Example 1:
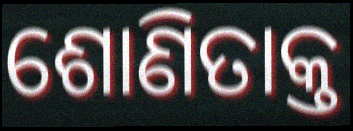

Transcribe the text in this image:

ଶୋଣିତାକ୍ତ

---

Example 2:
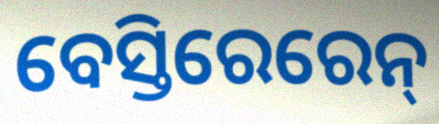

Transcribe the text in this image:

ବେସ୍ତିରେରେନ୍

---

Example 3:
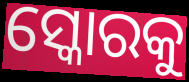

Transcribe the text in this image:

ସ୍କୋରକୁ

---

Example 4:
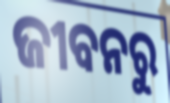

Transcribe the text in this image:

ଜୀବନରୁ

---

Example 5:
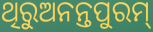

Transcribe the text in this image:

ଥିରୁଅନନ୍ତପୁରମ୍